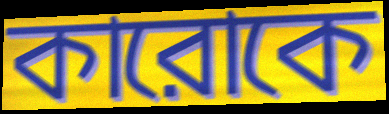
কারোকে